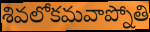
శివలోకమవాప్నోతి